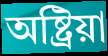
অষ্ট্রিয়া